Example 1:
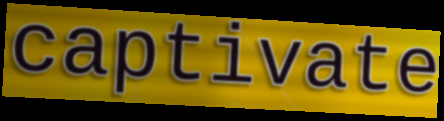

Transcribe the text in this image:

captivate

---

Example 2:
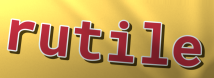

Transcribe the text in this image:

rutile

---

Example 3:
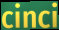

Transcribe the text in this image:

cinci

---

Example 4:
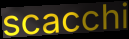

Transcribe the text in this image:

scacchi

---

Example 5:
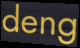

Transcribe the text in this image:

deng